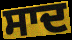
ਸਾਦ